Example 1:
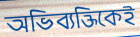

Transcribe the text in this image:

অভিব্যক্তিকেই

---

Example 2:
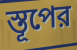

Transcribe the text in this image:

স্তূপের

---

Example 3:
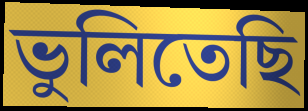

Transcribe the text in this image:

ভুলিতেছি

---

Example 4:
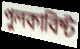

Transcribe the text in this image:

পুলকাবিষ্ট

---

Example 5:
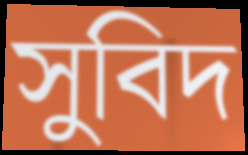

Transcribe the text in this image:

সুবিদ